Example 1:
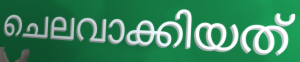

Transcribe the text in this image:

ചെലവാക്കിയത്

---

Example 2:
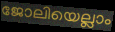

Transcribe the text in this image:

ജോലിയെല്ലാം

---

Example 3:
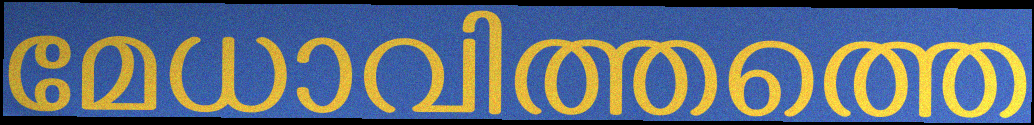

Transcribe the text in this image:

മേധാവിത്തത്തെ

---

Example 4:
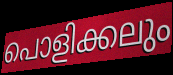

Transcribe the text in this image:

പൊളിക്കലും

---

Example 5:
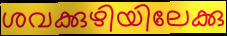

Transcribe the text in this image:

ശവക്കുഴിയിലേക്കു